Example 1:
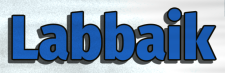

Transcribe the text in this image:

Labbaik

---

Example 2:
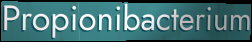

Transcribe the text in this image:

Propionibacterium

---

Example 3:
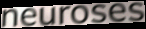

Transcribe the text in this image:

neuroses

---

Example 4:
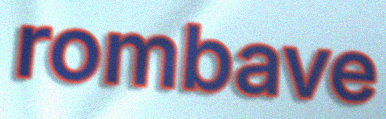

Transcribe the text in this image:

rombave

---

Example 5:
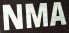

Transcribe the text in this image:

NMA